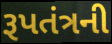
રૂપતંત્રની